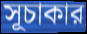
সূচাকার